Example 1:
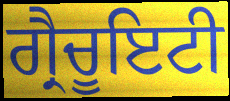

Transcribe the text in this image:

ਗ੍ਰੈਚੂਇਟੀ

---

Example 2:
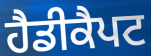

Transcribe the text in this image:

ਹੈਡੀਕੈਪਟ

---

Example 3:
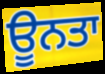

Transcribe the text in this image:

ਊਨਤਾ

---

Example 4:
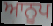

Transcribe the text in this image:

ਆਨੂਪ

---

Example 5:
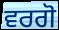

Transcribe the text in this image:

ਵਰਗੋ